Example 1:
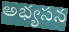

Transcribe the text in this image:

అభ్యసన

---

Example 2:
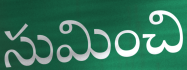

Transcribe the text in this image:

సుమించి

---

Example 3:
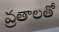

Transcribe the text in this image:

వ్రతాలతో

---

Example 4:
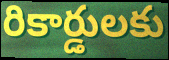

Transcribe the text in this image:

రికార్డులకు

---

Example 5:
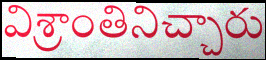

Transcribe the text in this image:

విశ్రాంతినిచ్చారు